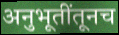
अनुभूतींतूनच